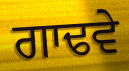
ਗਾਢਵੇ